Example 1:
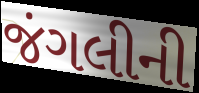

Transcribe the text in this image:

જંગલીની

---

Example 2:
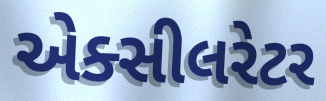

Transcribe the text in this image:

એક્સીલરેટર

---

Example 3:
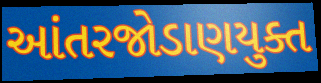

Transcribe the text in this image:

આંતરજોડાણયુક્ત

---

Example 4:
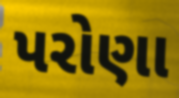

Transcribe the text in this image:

પરોણા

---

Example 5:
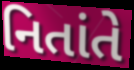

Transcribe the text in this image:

નિતાંતે